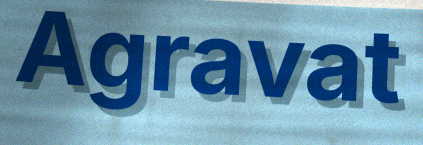
Agravat